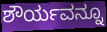
ಶೌರ್ಯವನ್ನೂ